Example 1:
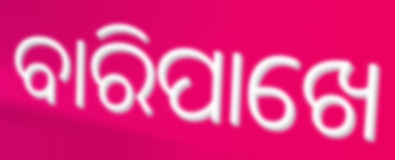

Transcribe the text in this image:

ବାରିପାଖେ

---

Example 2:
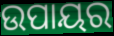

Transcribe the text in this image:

ଉପାୟର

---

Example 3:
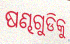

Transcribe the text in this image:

ଷଣ୍ଢଗୁଡିକୁ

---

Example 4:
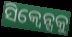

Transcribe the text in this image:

ସିକ୍ୱେନ୍ସକୁ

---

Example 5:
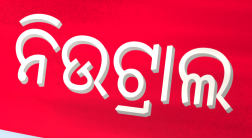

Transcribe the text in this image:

ନିଉଟ୍ରାଲ